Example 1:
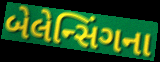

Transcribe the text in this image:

બેલેન્સિંગના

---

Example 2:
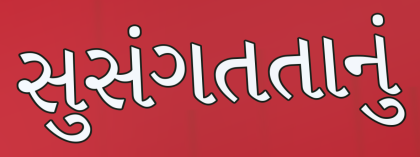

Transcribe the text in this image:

સુસંગતતાનું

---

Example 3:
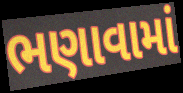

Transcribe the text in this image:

ભણાવામાં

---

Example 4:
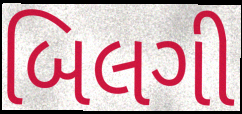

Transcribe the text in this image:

બિલગી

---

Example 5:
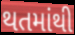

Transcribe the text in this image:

થતમાંથી